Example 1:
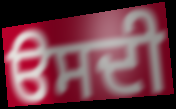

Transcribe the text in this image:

ੳਸਦੀ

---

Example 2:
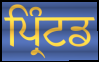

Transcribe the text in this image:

ਪ੍ਰਿੰਟਡ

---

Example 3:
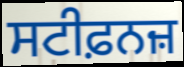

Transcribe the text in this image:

ਸਟੀਫ਼ਨਜ਼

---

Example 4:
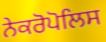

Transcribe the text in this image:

ਨੇਕਰੋਪੋਲਿਸ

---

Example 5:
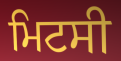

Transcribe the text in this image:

ਮਿਟਸੀ